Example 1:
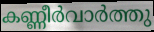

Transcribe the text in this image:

കണ്ണീർവാർത്തു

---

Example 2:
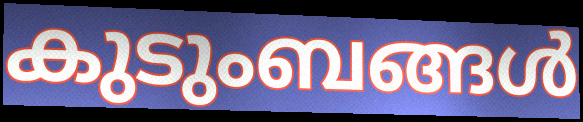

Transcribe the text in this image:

കുടുംബങ്ങൾ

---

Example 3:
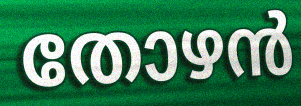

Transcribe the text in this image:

തോഴൻ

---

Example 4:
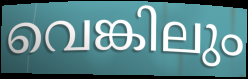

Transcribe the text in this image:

വെങ്കിലും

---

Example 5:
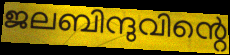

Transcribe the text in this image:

ജലബിന്ദുവിന്റെ